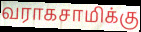
வராகசாமிக்கு